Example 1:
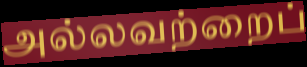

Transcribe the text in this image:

அல்லவற்றைப்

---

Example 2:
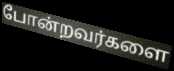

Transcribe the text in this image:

போன்றவர்களை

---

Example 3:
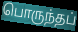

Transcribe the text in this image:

பொருந்தப்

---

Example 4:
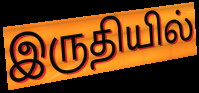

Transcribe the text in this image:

இருதியில்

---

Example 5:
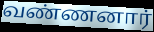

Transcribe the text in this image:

வண்ணனார்